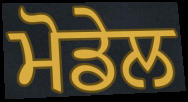
ਮੋਡੇਲ